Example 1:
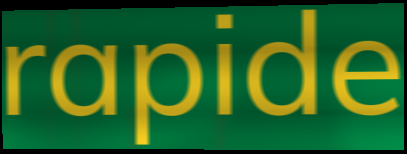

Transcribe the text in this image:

rapide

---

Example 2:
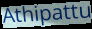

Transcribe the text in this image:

Athipattu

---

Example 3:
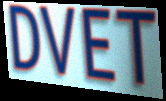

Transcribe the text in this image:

DVET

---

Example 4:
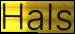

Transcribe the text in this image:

Hals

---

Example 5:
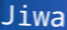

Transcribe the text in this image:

Jiwa